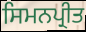
ਸਿਮਨਪ੍ਰੀਤ